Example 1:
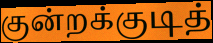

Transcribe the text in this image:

குன்றக்குடித்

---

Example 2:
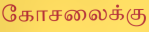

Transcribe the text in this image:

கோசலைக்கு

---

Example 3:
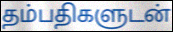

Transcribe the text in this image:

தம்பதிகளுடன்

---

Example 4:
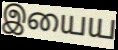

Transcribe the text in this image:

இயைய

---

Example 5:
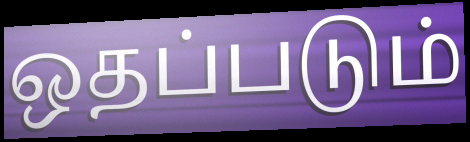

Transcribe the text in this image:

ஒதப்படும்